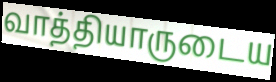
வாத்தியாருடைய